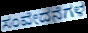
ಸಂವೇದನೆಗಳ